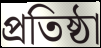
প্রতিষ্ঠা